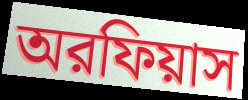
অরফিয়াস